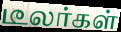
டீலர்கள்